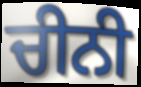
ਚੀਨੀ